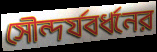
সৌন্দর্যবর্ধনের